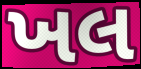
ખલ